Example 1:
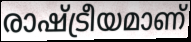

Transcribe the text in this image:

രാഷ്ട്രീയമാണ്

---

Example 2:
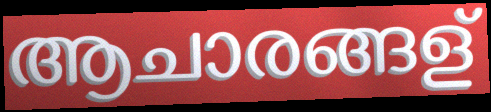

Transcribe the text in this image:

ആചാരങ്ങള്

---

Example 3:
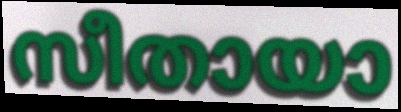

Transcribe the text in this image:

സീതായാ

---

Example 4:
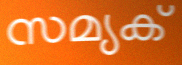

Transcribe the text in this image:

സമ്യക്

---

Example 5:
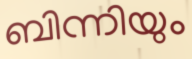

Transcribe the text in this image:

ബിന്നിയും